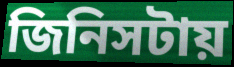
জিনিসটায়